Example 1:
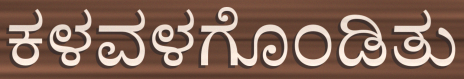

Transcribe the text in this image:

ಕಳವಳಗೊಂಡಿತು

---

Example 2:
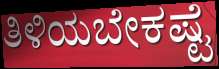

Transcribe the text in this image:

ತಿಳಿಯಬೇಕಷ್ಟೆ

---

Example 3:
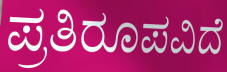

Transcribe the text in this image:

ಪ್ರತಿರೂಪವಿದೆ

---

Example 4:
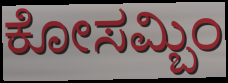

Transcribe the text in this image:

ಕೋಸಮ್ಬಿಂ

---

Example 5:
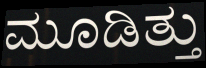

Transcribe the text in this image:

ಮೂಡಿತ್ತು